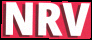
NRV